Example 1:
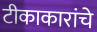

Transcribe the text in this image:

टीकाकारांचे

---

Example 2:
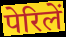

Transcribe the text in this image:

पेरिलें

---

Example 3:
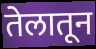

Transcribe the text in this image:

तेलातून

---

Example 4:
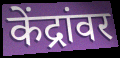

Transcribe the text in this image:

केंद्रांवर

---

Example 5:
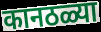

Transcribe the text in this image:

कानठळ्या